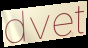
dvet